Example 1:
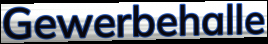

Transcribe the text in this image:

Gewerbehalle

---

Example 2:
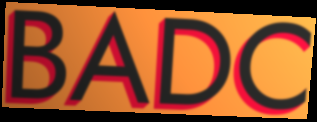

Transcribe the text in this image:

BADC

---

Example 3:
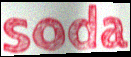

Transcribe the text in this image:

soda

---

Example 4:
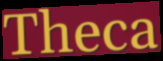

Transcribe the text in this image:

Theca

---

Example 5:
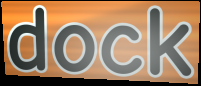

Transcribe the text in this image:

dock